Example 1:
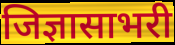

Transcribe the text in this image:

जिज्ञासाभरी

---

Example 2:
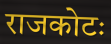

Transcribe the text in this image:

राजकोटः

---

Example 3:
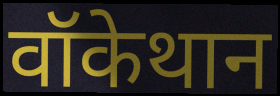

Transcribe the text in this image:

वॉकेथान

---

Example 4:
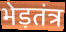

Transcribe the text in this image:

भेड़तंत्र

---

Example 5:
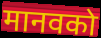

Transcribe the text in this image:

मानवको